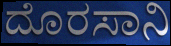
ದೊರಸಾನಿ